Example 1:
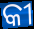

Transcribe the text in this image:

କୀ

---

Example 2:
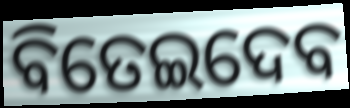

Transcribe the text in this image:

ବିତେଇଦେବ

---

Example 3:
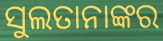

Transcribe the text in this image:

ସୁଲତାନାଙ୍କର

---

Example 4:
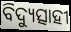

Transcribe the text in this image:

ବିଦ୍ୟୁତ୍ସାହୀ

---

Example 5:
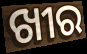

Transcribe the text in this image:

ଖୀର